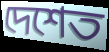
দেশেত